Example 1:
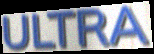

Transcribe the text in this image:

ULTRA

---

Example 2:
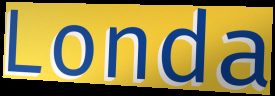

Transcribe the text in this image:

Londa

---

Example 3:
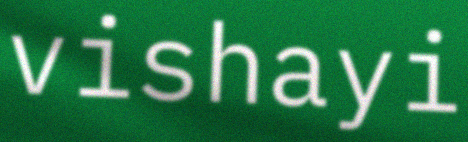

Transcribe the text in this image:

vishayi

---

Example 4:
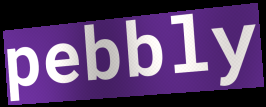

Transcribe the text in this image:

pebbly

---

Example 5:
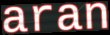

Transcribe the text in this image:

aran